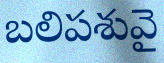
బలిపశువై